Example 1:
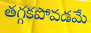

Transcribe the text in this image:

తగ్గకపోవడమే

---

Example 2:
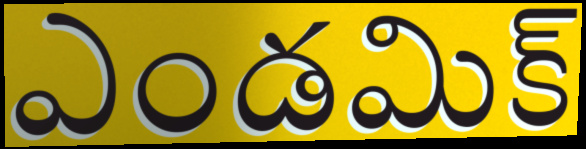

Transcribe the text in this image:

ఎండమిక్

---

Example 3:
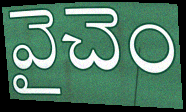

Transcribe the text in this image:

వైచెం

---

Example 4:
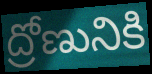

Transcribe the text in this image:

ద్రోణునికి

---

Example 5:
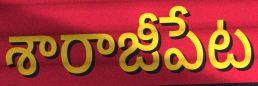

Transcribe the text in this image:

శారాజీపేట